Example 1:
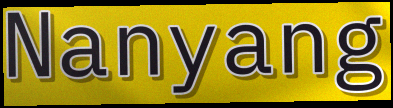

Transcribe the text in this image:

Nanyang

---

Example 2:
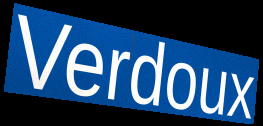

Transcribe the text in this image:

Verdoux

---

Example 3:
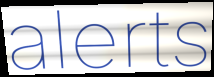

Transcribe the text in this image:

alerts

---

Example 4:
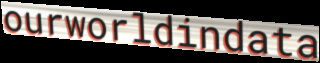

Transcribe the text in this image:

ourworldindata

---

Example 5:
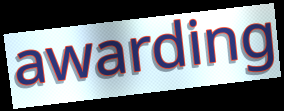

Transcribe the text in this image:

awarding